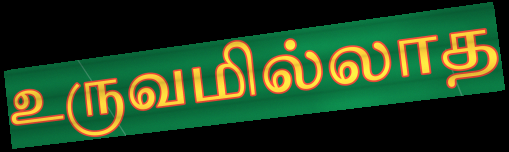
உருவமில்லாத